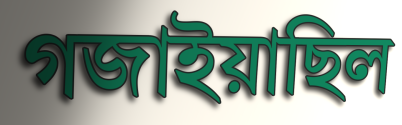
গজাইয়াছিল